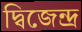
দ্বিজেন্দ্র